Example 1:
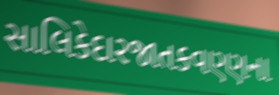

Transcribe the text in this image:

સાલિકેદારજાતકવણ્ણના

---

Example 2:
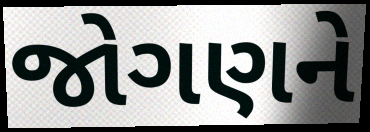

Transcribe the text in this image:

જોગણને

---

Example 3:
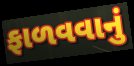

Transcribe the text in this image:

ફાળવવાનું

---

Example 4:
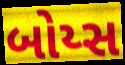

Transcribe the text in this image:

બોય્સ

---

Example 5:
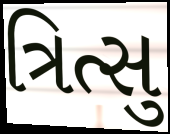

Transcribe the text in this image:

ત્રિત્સુ